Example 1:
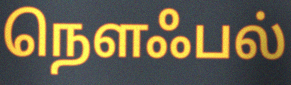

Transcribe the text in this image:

நௌஃபல்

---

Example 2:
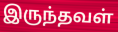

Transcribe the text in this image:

இருந்தவள்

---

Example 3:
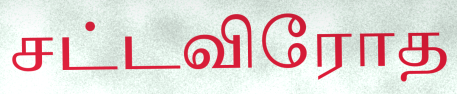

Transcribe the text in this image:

சட்டவிரோத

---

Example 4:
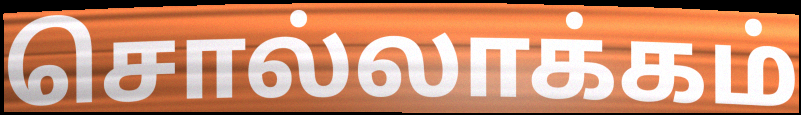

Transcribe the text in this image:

சொல்லாக்கம்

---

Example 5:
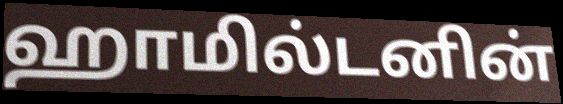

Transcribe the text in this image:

ஹாமில்டனின்